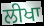
ਲੀਖਾ